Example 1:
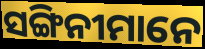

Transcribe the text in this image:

ସଙ୍ଗିନୀମାନେ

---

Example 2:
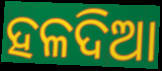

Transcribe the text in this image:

ହଳଦିଆ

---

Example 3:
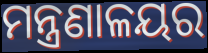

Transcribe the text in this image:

ମନ୍ତ୍ରଣାଳୟର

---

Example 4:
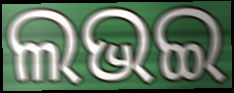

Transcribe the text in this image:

ଲଭଇ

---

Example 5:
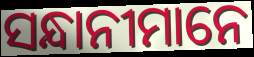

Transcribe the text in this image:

ସନ୍ଧାନୀମାନେ